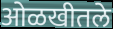
ओळखीतले